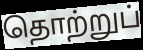
தொற்றுப்